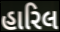
હારિલ